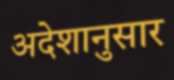
अदेशानुसार